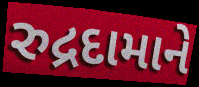
રુદ્રદામાને